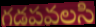
గడపవలసి